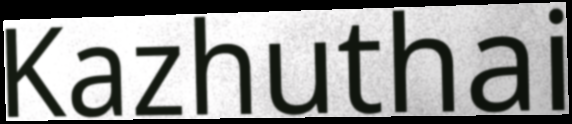
Kazhuthai